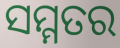
ସମ୍ମତର